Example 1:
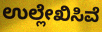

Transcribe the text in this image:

ಉಲ್ಲೇಖಿಸಿವೆ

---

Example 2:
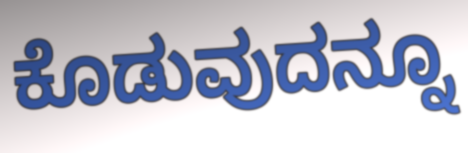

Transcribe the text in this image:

ಕೊಡುವುದನ್ನೂ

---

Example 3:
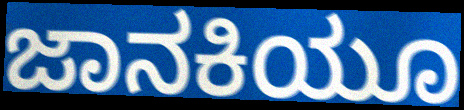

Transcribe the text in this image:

ಜಾನಕಿಯೂ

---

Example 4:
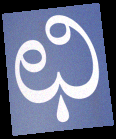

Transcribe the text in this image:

ಛಿ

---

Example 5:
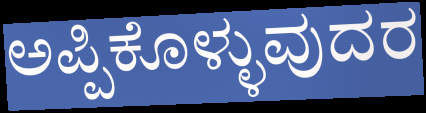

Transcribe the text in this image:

ಅಪ್ಪಿಕೊಳ್ಳುವುದರ